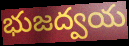
భుజద్వయ